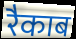
रैकाब